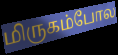
மிருகம்போல